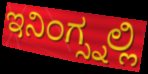
ಇನಿಂಗ್ಸ್ನಲ್ಲಿ